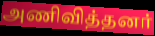
அணிவித்தனர்